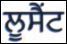
ਲੂਸੈਂਟ